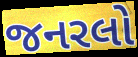
જનરલો